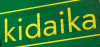
kidaika